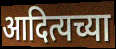
आदित्यच्या